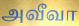
அவீவா